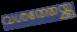
വശത്തേയ്ക്കു